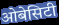
ओबेसिटी